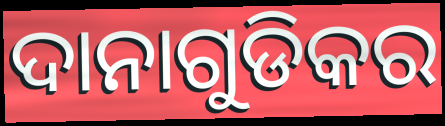
ଦାନାଗୁଡିକର